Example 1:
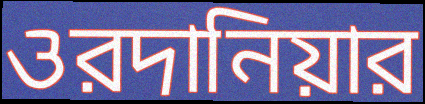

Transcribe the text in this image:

ওরদানিয়ার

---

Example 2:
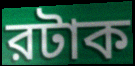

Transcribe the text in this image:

রটাক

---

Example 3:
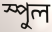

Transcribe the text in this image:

স্পুল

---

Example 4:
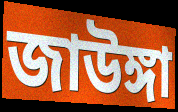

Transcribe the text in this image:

জাউঙ্গা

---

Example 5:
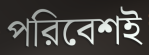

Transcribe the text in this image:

পরিবেশই